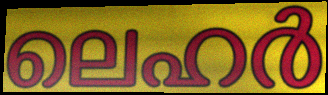
ലെഹർ